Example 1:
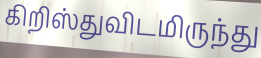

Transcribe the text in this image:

கிறிஸ்துவிடமிருந்து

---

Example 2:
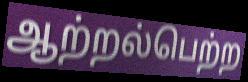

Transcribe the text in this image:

ஆற்றல்பெற்ற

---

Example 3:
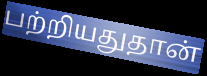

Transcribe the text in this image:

பற்றியதுதான்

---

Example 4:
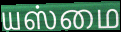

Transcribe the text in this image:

யஸ்மை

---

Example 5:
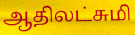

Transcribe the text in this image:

ஆதிலட்சுமி